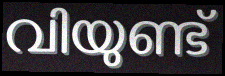
വിയുണ്ട്